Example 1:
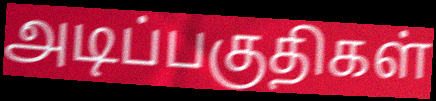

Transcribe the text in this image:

அடிப்பகுதிகள்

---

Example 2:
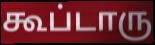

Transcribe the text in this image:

கூப்டாரு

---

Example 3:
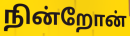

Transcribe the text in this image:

நின்றோன்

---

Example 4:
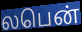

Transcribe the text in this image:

லபென்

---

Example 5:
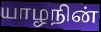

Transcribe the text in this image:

யாழநின்